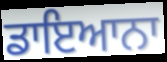
ਡਾਇਆਨਾ